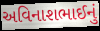
અવિનાશભાઈનું